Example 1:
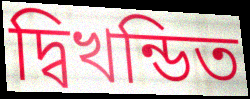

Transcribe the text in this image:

দ্বিখন্ডিত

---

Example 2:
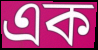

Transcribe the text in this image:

এক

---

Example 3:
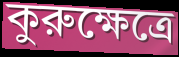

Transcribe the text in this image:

কুরুক্ষেত্রে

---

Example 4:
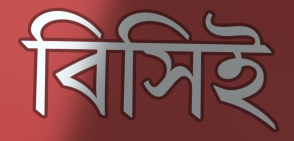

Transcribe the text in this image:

বিসিই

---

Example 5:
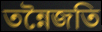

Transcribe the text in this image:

তন্নৈজতি